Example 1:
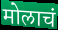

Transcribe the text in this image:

मोलाचं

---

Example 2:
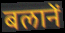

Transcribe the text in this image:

बलानें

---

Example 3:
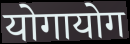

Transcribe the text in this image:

योगायोग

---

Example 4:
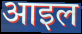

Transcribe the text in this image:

आइल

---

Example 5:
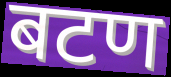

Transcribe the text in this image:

बटण